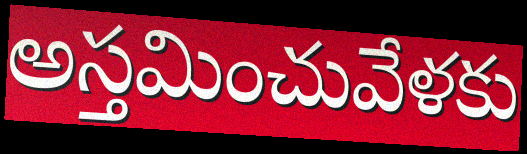
అస్తమించువేళకు